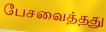
பேசவைத்தது